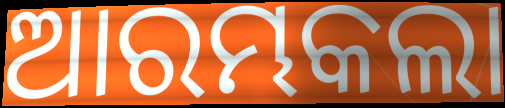
ଆରମ୍ଭକଲା